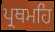
ਪ੍ਰਥਮਹਿ